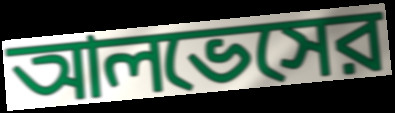
আলভেসের